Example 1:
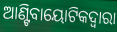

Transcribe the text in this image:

ଆଣ୍ଟିବାୟୋଟିକଦ୍ୱାରା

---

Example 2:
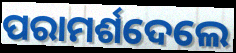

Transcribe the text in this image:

ପରାମର୍ଶଦେଲେ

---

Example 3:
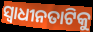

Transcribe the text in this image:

ସ୍ୱାଧୀନତାଟିକୁ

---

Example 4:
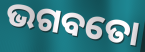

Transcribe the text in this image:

ଭଗବତୋ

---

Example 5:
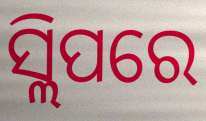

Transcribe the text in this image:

ସ୍ଲିପରେ